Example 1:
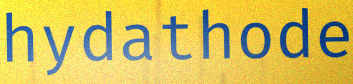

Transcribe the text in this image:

hydathode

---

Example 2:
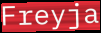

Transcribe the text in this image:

Freyja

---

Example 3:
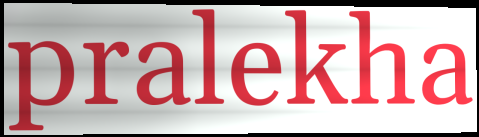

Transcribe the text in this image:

pralekha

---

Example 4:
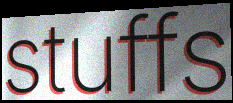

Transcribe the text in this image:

stuffs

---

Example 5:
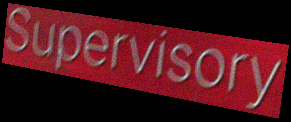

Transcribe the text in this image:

Supervisory